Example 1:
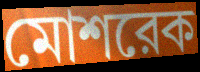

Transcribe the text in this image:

মোশরেক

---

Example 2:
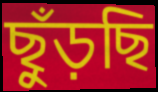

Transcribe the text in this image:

ছুঁড়ছি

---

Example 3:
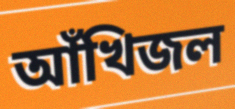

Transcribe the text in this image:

আঁখিজল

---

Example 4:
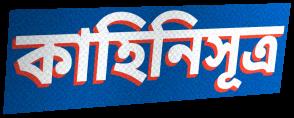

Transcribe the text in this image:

কাহিনিসূত্র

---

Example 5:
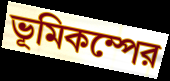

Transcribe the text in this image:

ভূমিকম্পের